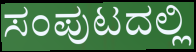
ಸಂಪುಟದಲ್ಲಿ